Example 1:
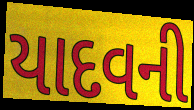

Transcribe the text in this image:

યાદવની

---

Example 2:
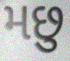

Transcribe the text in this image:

મછુ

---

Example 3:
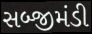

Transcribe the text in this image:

સબ્જીમંડી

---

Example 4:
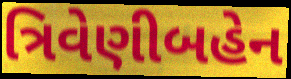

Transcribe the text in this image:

ત્રિવેણીબહેન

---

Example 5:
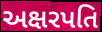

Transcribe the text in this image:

અક્ષરપતિ